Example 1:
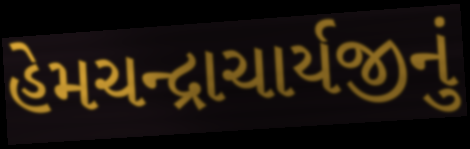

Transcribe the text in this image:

હેમચન્દ્રાચાર્યજીનું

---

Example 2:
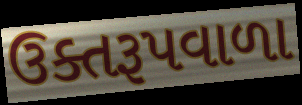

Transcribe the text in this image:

ઉક્તરૂપવાળા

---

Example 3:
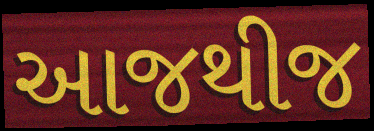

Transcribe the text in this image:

આજથીજ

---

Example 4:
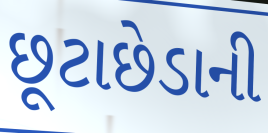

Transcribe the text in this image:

છૂટાછેડાની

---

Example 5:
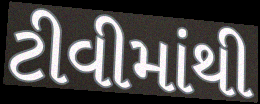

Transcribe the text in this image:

ટીવીમાંથી